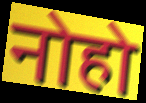
नोहो